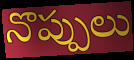
నొప్పులు